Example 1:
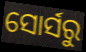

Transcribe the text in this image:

ସୋର୍ସରୁ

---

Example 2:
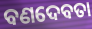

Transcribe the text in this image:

ବଣଦେବତା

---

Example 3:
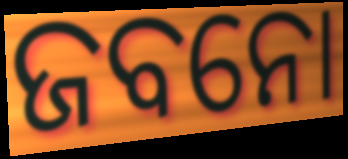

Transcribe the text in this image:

ଜବନୋ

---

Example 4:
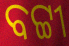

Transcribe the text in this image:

ବଟ୍ଟୀ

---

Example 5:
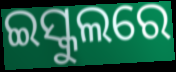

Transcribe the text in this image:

ଇସ୍କୁଲରେ